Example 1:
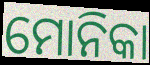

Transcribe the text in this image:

ମୋନିକା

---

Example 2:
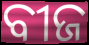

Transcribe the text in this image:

ବୀଜ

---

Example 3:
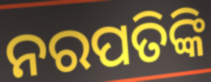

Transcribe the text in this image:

ନରପତିଙ୍କି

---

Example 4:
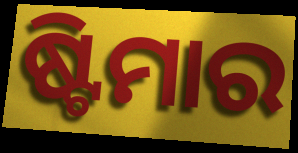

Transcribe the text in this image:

ଷ୍ଟିମାର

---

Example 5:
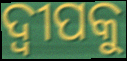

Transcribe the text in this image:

ଦ୍ୱୀପକୁ